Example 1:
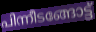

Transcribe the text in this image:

പിന്നീടങ്ങോട്ട്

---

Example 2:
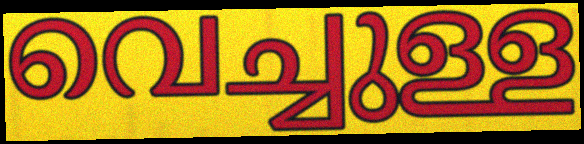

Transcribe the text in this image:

വെച്ചുള്ള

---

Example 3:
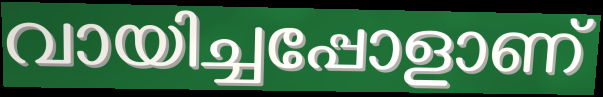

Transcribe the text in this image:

വായിച്ചപ്പോളാണ്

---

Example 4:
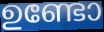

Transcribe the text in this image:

ഉണ്ടോ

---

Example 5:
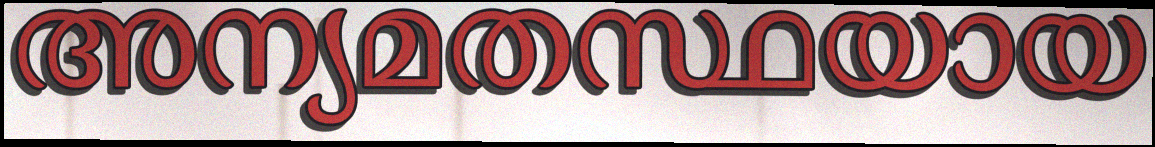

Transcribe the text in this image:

അന്യമതസ്ഥയായ